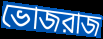
ভোজরাজ